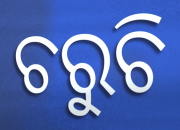
ଚରୁଚି